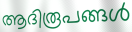
ആദിരൂപങ്ങൾ